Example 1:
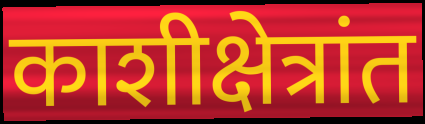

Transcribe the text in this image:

काशीक्षेत्रांत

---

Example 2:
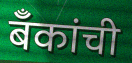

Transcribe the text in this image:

बॅँकांची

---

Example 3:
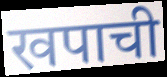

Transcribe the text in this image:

खपाची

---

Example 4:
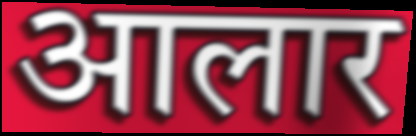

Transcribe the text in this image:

आलार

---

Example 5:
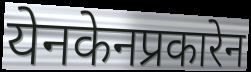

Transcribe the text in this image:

येनकेनप्रकारेन